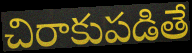
చిరాకుపడితే